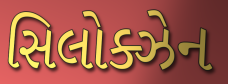
સિલોક્ઝેન